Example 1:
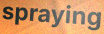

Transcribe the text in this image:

spraying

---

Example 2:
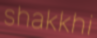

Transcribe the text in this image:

shakkhi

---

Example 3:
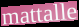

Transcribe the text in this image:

mattalle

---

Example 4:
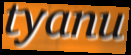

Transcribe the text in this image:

tyanu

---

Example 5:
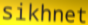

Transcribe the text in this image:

sikhnet